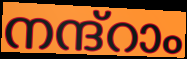
നന്ദ്റാം